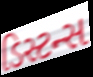
ડિસ્ટન્સ